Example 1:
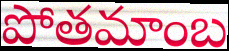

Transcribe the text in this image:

పోతమాంబ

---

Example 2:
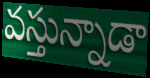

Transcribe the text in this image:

వస్తున్నాడా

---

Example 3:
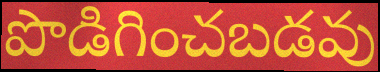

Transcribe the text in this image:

పొడిగించబడవు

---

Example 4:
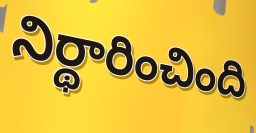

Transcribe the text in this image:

నిర్థారించింది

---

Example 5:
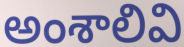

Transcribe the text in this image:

అంశాలివి